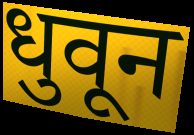
धुवून